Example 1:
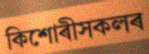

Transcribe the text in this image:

কিশোৰীসকলৰ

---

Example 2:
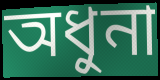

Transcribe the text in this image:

অধুনা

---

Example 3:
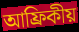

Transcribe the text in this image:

আফ্ৰিকীয়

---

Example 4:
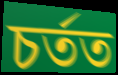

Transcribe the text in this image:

চৰ্তত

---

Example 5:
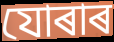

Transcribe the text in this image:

যোৰাৰ